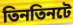
তিনতিনটে